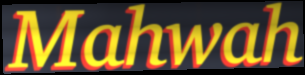
Mahwah